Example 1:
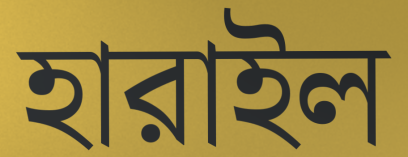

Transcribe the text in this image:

হারাইল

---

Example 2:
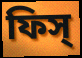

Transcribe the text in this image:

ফিস্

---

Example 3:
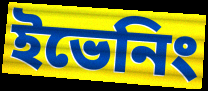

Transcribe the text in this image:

ইভেনিং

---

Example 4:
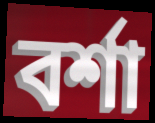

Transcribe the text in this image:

বর্শা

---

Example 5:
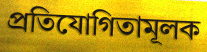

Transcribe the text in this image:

প্রতিযোগিতামূলক